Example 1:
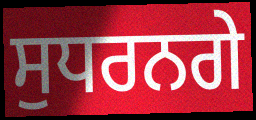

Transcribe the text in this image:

ਸੁਧਰਨਗੇ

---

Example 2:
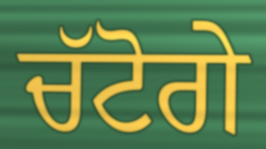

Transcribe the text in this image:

ਚੱਟੋਗੇ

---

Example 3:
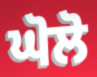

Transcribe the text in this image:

ਘੋਲੋ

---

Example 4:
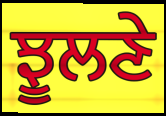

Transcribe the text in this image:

ਝੂਲਣੇ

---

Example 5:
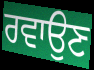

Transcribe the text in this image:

ਰਵਾਉਣ